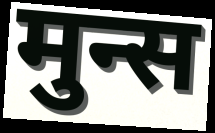
मुन्स